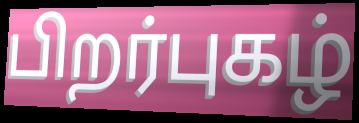
பிறர்புகழ்